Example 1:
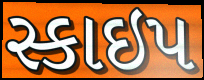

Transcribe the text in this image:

સ્કાઇપ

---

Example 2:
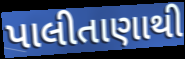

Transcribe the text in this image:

પાલીતાણાથી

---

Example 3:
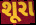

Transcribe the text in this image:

શૂરા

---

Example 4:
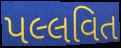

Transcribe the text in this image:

પલ્લવિત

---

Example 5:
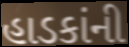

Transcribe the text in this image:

હાડકાંની